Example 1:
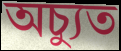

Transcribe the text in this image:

অচ্যুত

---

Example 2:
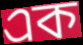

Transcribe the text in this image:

এক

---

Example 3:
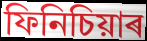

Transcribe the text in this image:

ফিনিচিয়াৰ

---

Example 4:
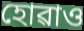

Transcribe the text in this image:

হোৱাও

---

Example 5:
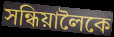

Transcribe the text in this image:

সন্ধিয়ালৈকে